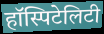
हॉस्पिटेलिटी